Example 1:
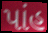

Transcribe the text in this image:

પાંહ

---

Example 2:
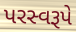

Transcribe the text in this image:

પરસ્વરૂપે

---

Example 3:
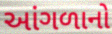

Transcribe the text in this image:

આંગળાનો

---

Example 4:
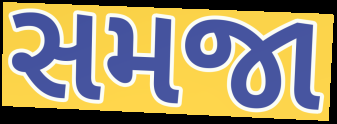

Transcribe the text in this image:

સમજા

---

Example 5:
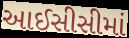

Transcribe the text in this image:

આઈસીસીમાં